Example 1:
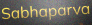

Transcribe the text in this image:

Sabhaparva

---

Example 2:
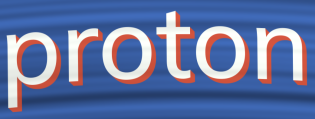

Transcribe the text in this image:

proton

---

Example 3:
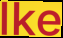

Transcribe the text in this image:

Ike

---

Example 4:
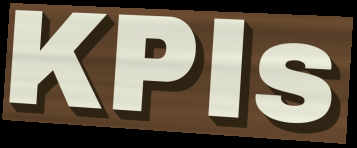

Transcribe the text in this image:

KPIs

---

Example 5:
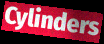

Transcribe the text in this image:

Cylinders